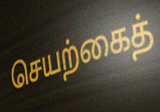
செயற்கைத்